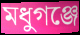
মধুগঞ্জে